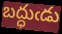
బద్ధుఁడు